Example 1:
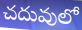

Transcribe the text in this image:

చదువులో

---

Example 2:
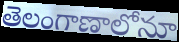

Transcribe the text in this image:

తెలంగాణాలోనూ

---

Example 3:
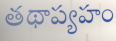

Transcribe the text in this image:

తథాప్యహం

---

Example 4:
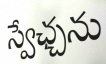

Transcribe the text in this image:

స్వేఛ్చను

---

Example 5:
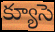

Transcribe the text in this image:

క్యూసె